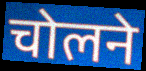
चोलने